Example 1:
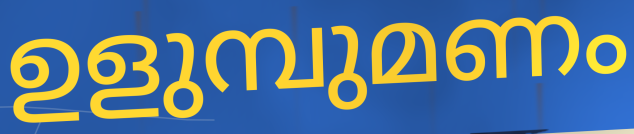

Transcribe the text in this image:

ഉളുമ്പുമണം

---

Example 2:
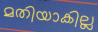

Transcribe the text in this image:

മതിയാകില്ല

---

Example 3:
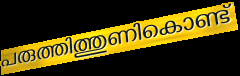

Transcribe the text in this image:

പരുത്തിത്തുണികൊണ്ട്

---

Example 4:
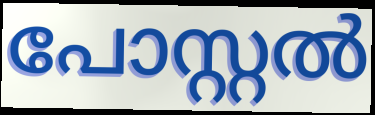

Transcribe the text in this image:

പോസ്റ്റൽ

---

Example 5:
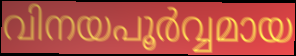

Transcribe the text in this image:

വിനയപൂർവ്വമായ